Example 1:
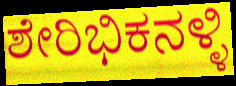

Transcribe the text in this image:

ಶೇರಿಭಿಕನಳ್ಳಿ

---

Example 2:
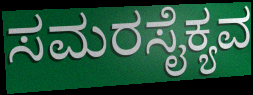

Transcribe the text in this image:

ಸಮರಸೈಕ್ಯವ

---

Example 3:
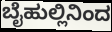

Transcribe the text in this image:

ಬೈಹುಲ್ಲಿನಿಂದ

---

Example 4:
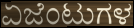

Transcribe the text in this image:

ಏಜೆಂಟುಗಳ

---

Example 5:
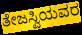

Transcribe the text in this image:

ತೇಜಸ್ವಿಯವರ